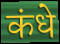
कंधे